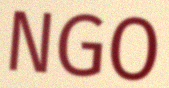
NGO